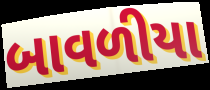
બાવળીયા